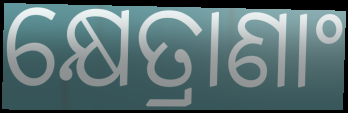
କ୍ଷେତ୍ରାଣାଂ